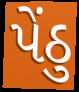
પેંઠુ